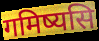
गमिष्यसि